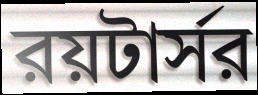
রয়টার্সর